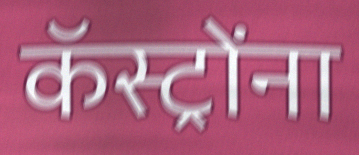
कॅस्ट्रोंना